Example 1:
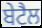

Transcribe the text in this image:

ਬੇਟੈਲ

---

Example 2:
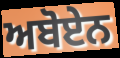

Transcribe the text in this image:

ਅਬੋਏਨ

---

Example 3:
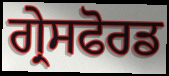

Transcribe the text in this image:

ਗ੍ਰੇਸਫੋਰਡ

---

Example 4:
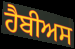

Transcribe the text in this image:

ਹੈਬੀਅਸ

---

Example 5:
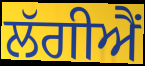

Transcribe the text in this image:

ਲੱਗੀਐਂ